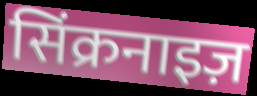
सिंक्रनाइज़